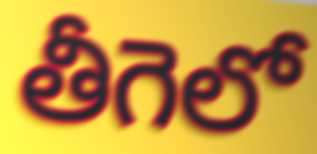
తీగెలో